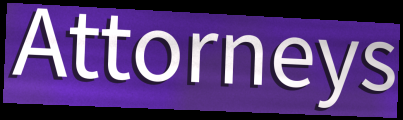
Attorneys